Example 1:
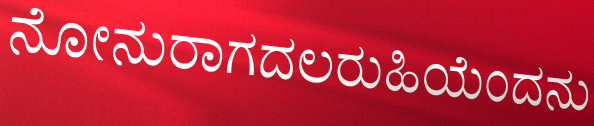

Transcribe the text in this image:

ನೋನುರಾಗದಲರುಹಿಯೆಂದನು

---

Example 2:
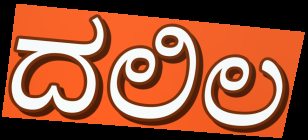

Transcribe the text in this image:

ದಲಿಲ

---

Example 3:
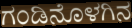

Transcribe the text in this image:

ಗಂಡಿನೊಳಗಿನ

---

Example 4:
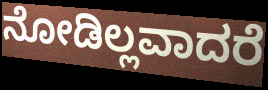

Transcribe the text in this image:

ನೋಡಿಲ್ಲವಾದರೆ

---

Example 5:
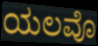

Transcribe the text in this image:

ಯಲವೊ